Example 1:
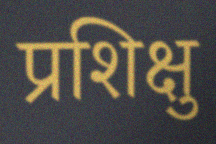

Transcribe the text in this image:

प्रशिक्षु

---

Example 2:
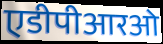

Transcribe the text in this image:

एडीपीआरओ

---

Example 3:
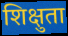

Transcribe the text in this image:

शिक्षुता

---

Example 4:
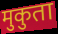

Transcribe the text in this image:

मुकुता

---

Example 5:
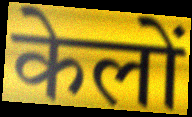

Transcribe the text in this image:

केलों